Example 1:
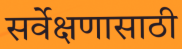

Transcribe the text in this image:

सर्वेक्षणासाठी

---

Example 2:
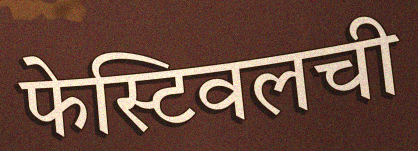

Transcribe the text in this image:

फेस्टिवलची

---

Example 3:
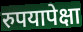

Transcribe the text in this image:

रुपयापेक्षा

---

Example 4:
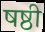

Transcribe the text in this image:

षष्ठी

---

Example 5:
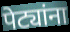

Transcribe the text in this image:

पेट्यांना